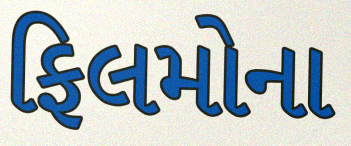
ફિલમોના